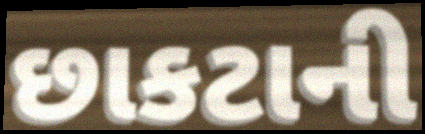
છાકટાની